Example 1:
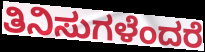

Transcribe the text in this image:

ತಿನಿಸುಗಳೆಂದರೆ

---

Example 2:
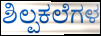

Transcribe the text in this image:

ಶಿಲ್ಪಕಲೆಗಳ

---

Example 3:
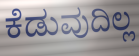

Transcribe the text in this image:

ಕೆಡುವುದಿಲ್ಲ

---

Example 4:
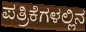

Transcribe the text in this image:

ಪತ್ರಿಕೆಗಳಲ್ಲಿನ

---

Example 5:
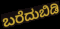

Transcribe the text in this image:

ಬರೆದುಬಿಡಿ